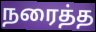
நரைத்த